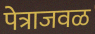
पेत्राजवळ